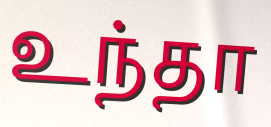
உந்தா